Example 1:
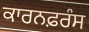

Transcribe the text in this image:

ਕਾਰਨਫ਼ਰੰਸ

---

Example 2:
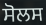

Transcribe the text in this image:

ਸੋਲਸ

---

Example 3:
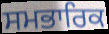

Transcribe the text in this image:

ਸਮਭਾਰਿਕ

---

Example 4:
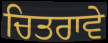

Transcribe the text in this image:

ਚਿਤਰਾਵੇ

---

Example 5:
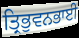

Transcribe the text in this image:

ਤ੍ਰਿਭੁਵਨਭਾਈ